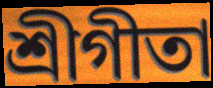
শ্রীগীতা